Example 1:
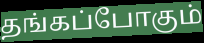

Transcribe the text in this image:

தங்கப்போகும்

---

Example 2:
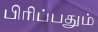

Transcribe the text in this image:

பிரிப்பதும்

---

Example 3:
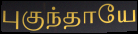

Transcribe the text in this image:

புகுந்தாயே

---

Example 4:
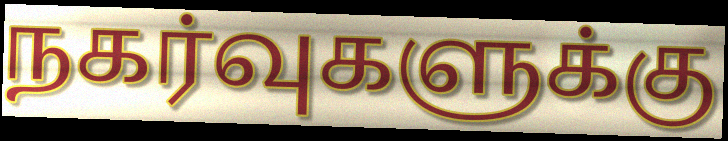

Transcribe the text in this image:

நகர்வுகளுக்கு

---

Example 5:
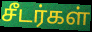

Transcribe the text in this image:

சீடர்கள்